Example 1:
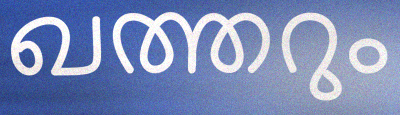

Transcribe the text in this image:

ഖത്തറും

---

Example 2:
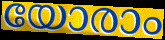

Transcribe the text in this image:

യോരാം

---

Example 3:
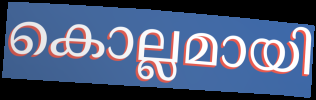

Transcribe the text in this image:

കൊല്ലമായി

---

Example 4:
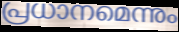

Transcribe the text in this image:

പ്രധാനമെന്നും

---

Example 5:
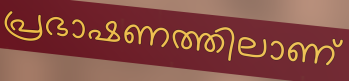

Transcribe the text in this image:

പ്രഭാഷണത്തിലാണ്